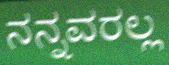
ನನ್ನವರಲ್ಲ